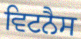
ਵਿਟਨੈਸ